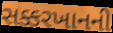
સક્કરખાનની